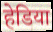
हेडिया